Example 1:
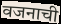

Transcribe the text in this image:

वजनाची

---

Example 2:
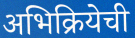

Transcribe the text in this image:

अभिक्रियेची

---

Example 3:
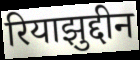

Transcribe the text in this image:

रियाझुद्दीन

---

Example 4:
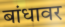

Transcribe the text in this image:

बांधावर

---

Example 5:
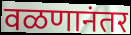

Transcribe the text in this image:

वळणानंतर